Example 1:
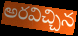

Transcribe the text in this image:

అరవిచ్చిన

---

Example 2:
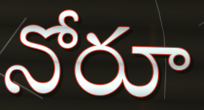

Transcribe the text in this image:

నోరూ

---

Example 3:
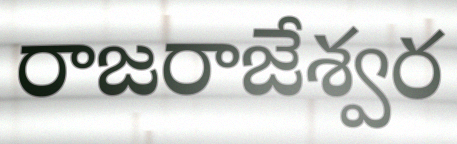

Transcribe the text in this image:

రాజరాజేశ్వర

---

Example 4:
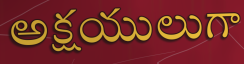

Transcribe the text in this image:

అక్షయులుగా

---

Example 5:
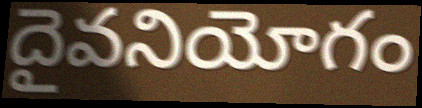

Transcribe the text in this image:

దైవనియోగం